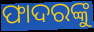
ଫାଦରଙ୍କୁ